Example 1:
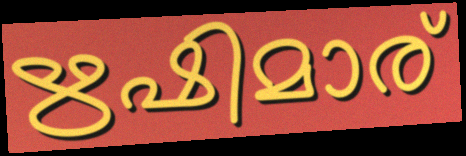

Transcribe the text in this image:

ഋഷിമാര്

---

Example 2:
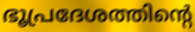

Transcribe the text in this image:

ഭൂപ്രദേശത്തിന്റെ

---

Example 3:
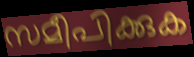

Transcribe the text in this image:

സമീപിക്കുക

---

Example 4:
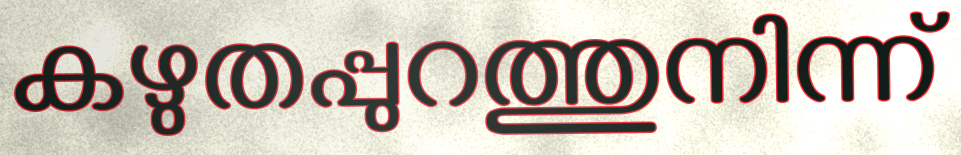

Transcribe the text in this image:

കഴുതപ്പുറത്തുനിന്ന്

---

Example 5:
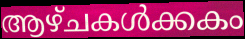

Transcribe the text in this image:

ആഴ്ചകൾക്കകം